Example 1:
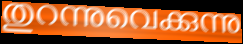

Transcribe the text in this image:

തുറന്നുവെക്കുന്നു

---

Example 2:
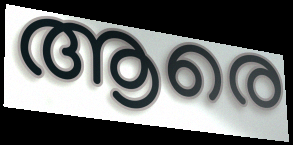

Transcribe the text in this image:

ആരെ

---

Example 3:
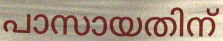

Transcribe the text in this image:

പാസായതിന്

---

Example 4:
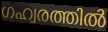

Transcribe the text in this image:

ഗഹ്വരത്തിൽ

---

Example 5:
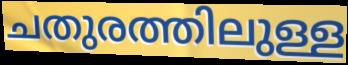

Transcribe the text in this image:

ചതുരത്തിലുള്ള